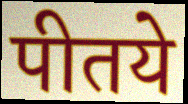
पीतये